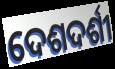
ଦେଶଦର୍ଶୀ